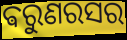
ଵରୁଣରସର